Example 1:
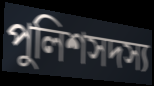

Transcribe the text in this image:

পুলিশসদস্য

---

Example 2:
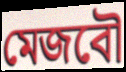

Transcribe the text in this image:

মেজবৌ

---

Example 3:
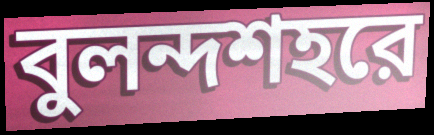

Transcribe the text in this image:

বুলন্দশহরে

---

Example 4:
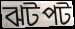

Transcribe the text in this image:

ঝটপট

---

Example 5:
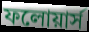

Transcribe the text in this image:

ফলোয়ার্স